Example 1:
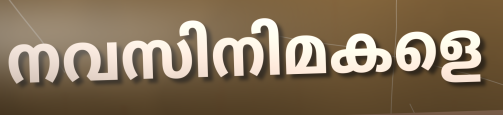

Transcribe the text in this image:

നവസിനിമകളെ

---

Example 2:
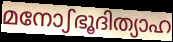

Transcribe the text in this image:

മനോഽഭൂദിത്യാഹ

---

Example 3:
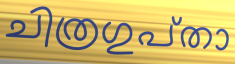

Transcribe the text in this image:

ചിത്രഗുപ്‌താ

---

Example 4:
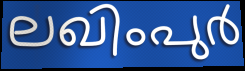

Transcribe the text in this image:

ലഖിംപുർ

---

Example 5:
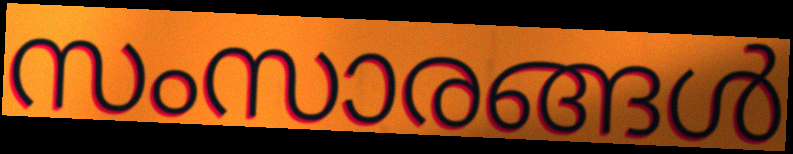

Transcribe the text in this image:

സംസാരങ്ങൾ